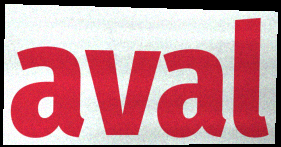
aval